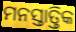
ମନସ୍ତାତ୍ତିକ